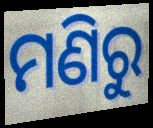
ମଣିରୁ